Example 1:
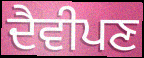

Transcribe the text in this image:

ਦੈਵੀਪਣ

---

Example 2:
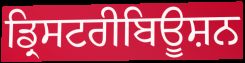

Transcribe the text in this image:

ਡ੍ਰਿਸਟਰੀਬਿਊਸ਼ਨ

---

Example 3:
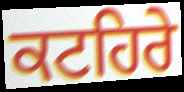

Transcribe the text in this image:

ਕਟਹਿਰੇ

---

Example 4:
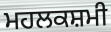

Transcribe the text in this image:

ਮਹਲਕਸ਼ਮੀ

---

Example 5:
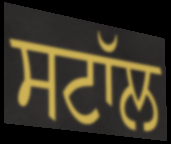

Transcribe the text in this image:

ਸਟਾੱਲ